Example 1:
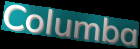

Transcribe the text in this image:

Columba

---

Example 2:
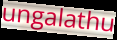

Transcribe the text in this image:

ungalathu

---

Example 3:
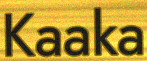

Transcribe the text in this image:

Kaaka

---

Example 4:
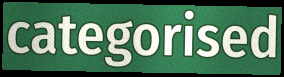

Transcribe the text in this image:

categorised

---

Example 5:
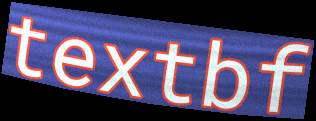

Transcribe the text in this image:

textbf